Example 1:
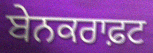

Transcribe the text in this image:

ਬੇਨਕਰਾਫ਼ਟ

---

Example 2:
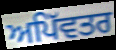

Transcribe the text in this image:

ਅਪਿੱਵਤਰ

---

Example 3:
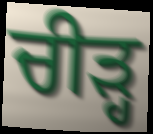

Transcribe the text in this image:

ਚੀੜ੍ਹ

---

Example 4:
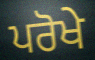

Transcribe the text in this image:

ਪਰੋਖੇ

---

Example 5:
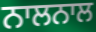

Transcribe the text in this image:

ਨਾਲਨਾਲ